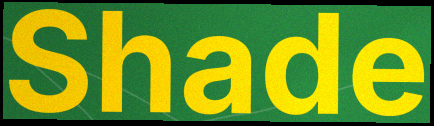
Shade